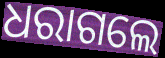
ଧରାଗଲେ